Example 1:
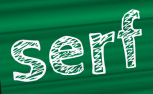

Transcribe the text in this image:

serf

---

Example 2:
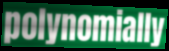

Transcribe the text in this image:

polynomially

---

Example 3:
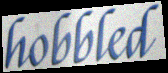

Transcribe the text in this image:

hobbled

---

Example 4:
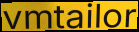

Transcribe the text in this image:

vmtailor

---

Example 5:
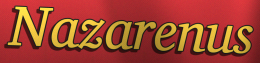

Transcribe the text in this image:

Nazarenus